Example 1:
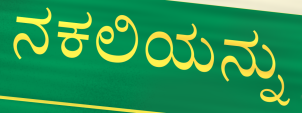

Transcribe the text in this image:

ನಕಲಿಯನ್ನು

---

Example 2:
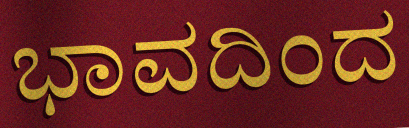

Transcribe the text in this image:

ಭಾವದಿಂದ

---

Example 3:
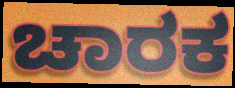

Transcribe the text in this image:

ಚಾರಕ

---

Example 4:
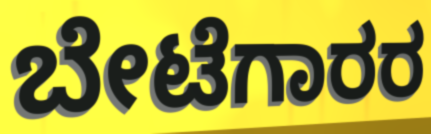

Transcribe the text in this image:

ಬೇಟೆಗಾರರ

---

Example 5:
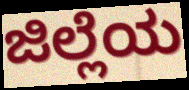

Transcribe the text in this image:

ಜಿಲ್ಲೆಯ